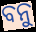
ବନୁ